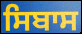
ਸਿਬਾਸ